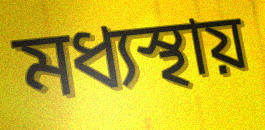
মধ্যস্থায়